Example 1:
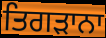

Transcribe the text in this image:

ਤਿਗੜਾਨਾ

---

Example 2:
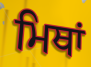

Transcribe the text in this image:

ਮਿਥਾਂ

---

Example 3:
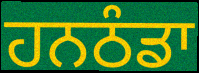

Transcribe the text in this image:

ਹਨਠੰਡਾ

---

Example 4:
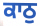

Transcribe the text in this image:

ਕਾਠੁ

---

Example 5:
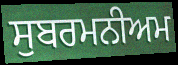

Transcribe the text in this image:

ਸੁਬਰਮਨੀਅਮ